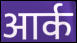
आर्क